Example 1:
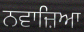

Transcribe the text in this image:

ਨਵਾਜ਼ਿਆ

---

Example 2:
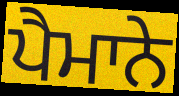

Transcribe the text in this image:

ਪੈਮਾਨੇ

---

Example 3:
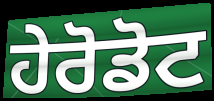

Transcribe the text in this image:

ਹੇਰੋਡੋਟ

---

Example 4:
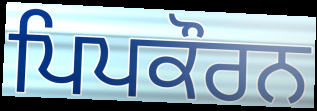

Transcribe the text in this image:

ਪਿਪਕੌਰਨ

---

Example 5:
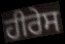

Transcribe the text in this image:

ਹੀਰੇਸ